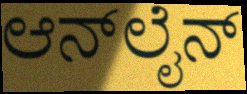
ಆನ್‍ಲೈನ್